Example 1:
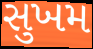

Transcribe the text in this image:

સુખમ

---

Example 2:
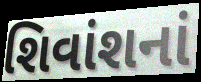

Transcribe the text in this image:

શિવાંશનાં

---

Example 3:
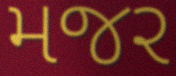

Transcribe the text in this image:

મજર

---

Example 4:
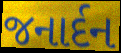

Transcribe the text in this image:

જનાર્દન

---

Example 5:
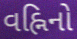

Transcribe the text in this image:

વહ્નિનો